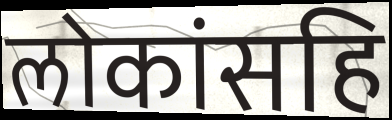
लोकांसहि